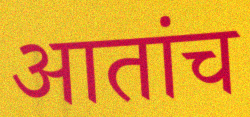
आतांच